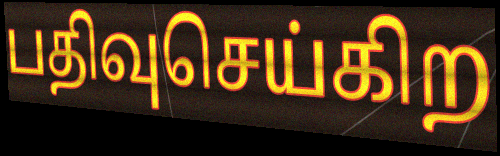
பதிவுசெய்கிற